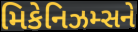
મિકેનિઝમ્સને